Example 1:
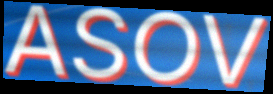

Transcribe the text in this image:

ASOV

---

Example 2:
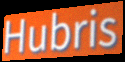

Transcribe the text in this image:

Hubris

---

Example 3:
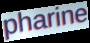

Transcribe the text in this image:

pharine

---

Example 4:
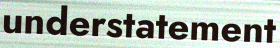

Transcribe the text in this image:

understatement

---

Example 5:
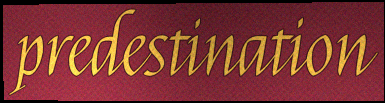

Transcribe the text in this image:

predestination